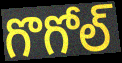
గొగోల్